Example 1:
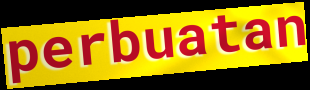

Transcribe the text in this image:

perbuatan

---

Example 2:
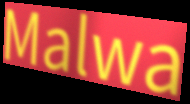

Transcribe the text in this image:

Malwa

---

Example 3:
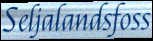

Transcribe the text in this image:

Seljalandsfoss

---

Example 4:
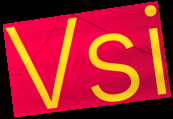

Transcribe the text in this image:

Vsi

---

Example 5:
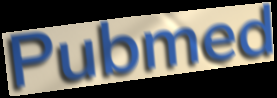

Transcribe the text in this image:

Pubmed